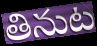
తినుట